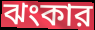
ঝংকার